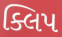
ક્લિપ